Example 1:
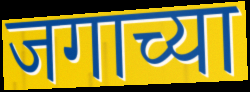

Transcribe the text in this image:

जगाच्या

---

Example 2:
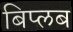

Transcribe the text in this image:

बिप्लब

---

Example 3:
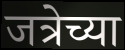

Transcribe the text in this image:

जत्रेच्या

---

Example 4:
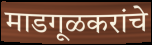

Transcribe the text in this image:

माडगूळकरांचे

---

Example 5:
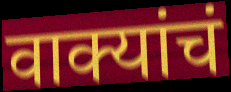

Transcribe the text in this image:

वाक्यांचं